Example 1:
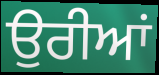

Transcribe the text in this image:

ਉਰੀਆਂ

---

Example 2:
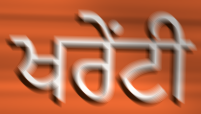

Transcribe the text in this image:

ਖਰੇਂਟੀ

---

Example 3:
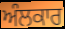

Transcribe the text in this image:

ਅੰਲਕਾਰ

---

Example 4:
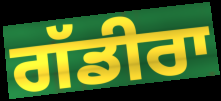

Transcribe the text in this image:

ਗੱਡੀਰਾ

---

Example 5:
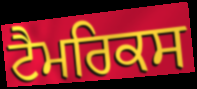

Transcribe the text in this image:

ਟੈਮਰਿਕਸ